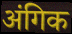
अंगिक